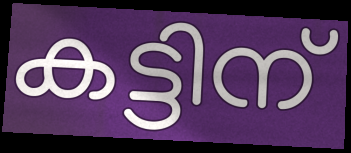
കട്ടിന്